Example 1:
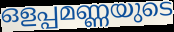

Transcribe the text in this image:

ഒളപ്പമണ്ണയുടെ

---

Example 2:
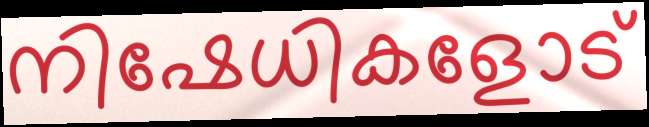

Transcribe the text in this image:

നിഷേധികളോട്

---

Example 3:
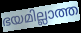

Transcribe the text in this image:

ഭയമില്ലാത്ത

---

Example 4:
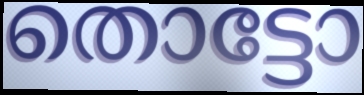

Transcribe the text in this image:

തൊട്ടോ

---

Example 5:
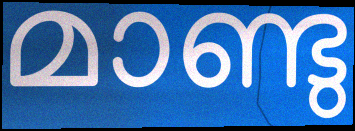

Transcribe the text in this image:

മാണ്ടു